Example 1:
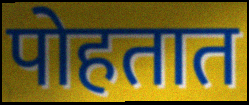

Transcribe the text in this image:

पोहतात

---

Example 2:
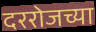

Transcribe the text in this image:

दररोजच्या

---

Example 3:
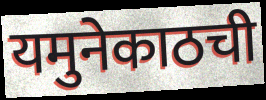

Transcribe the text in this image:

यमुनेकाठची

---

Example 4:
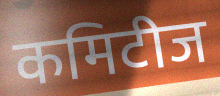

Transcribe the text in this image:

कमिटीज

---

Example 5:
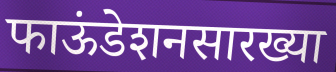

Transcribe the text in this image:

फाऊंडेशनसारख्या